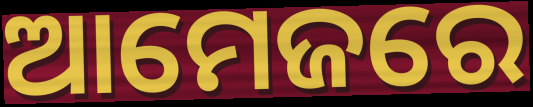
ଆମେଜରେ